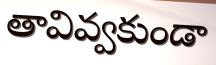
తావివ్వకుండా